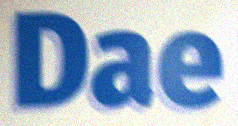
Dae